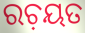
ରଚ଼ୟତ